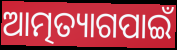
ଆତ୍ମତ୍ୟାଗପାଇଁ